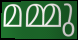
മമ്മു